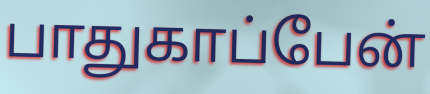
பாதுகாப்பேன்